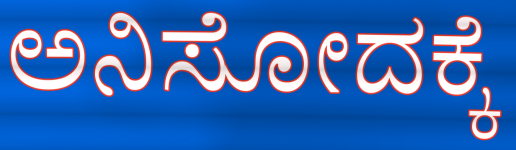
ಅನಿಸೋದಕ್ಕೆ